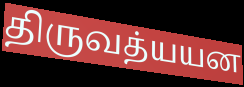
திருவத்யயன